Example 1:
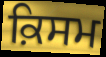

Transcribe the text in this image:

ਕ਼ਿਸਮ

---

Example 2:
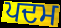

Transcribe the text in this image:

ਪਦਮ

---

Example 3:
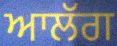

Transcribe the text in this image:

ਆਲੱਗ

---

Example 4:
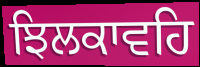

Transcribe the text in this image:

ਝਿਲਕਾਵਹਿ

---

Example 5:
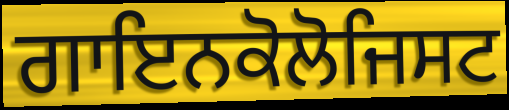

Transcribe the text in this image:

ਗਾਇਨਕੋਲੋਜਿਸਟ